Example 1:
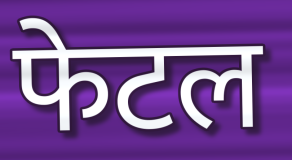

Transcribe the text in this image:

फेटल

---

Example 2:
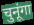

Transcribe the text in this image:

चुनूंगा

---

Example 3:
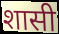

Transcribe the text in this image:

शासी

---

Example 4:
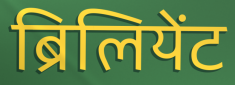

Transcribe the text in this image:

ब्रिलियेंट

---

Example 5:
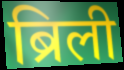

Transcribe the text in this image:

ब्रिली